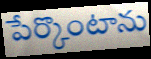
పేర్కొంటాను